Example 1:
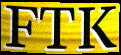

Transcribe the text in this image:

FTK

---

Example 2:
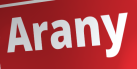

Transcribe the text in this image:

Arany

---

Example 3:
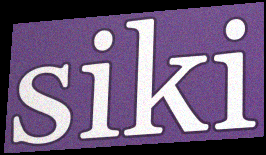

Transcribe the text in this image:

siki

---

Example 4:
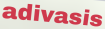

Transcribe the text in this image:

adivasis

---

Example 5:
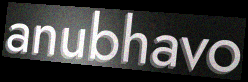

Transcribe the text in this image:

anubhavo